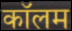
कॉलम